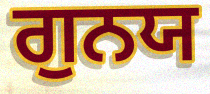
ਗੁਨਯ